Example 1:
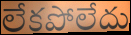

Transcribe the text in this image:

లేకపోలేదు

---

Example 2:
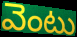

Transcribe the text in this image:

వెంటు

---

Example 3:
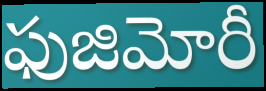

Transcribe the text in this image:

ఫుజిమోరీ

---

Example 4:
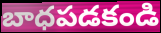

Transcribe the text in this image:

బాధపడకండి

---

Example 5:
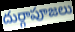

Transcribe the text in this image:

దుర్గాపూజలు